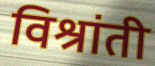
विश्रांती